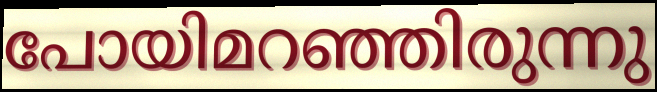
പോയിമറഞ്ഞിരുന്നു